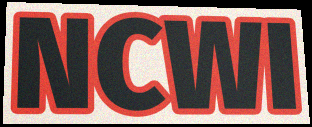
NCWI